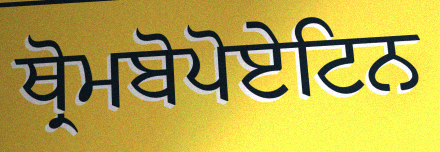
ਥ੍ਰੋਮਬੋਪੋਏਟਿਨ